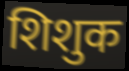
शिशुक